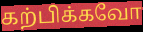
கற்பிக்கவோ